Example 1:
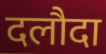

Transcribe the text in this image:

दलौदा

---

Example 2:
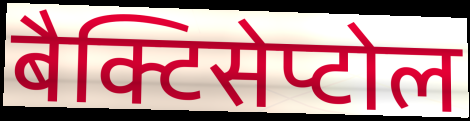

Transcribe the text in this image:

बैक्टिसेप्टोल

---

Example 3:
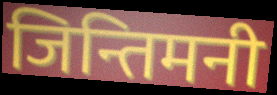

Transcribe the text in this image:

जिन्तिमनी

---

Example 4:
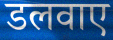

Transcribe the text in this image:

डलवाए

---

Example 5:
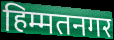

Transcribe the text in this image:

हिम्मतनगर